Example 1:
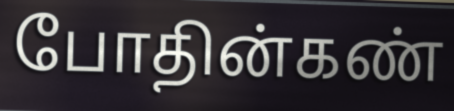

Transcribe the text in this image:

போதின்கண்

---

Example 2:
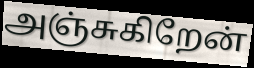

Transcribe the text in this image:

அஞ்சுகிறேன்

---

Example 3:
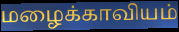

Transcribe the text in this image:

மழைக்காவியம்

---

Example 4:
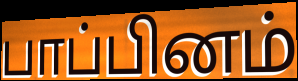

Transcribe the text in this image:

பாப்பினம்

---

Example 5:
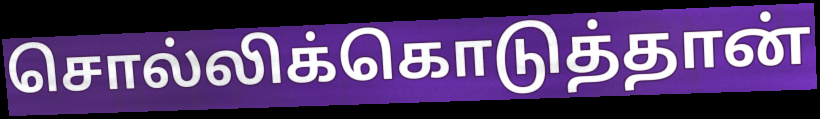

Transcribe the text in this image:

சொல்லிக்கொடுத்தான்